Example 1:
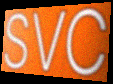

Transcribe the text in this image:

SVC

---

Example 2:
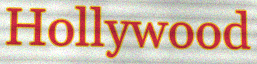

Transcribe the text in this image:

Hollywood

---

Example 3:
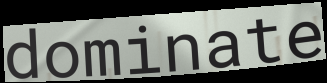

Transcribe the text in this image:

dominate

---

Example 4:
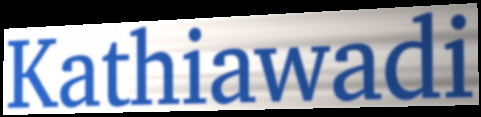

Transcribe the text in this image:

Kathiawadi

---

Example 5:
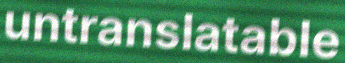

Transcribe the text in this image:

untranslatable